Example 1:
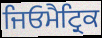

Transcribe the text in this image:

ਜਿਓਮੈਟ੍ਰਿਕ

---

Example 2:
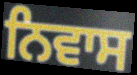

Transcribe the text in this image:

ਨਿਵਾਸ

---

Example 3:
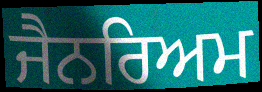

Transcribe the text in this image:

ਜੈਨਰਿਅਮ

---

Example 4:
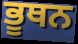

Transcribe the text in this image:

ਭੂਥਨ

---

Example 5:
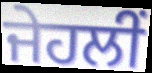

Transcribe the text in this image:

ਜੇਹਲੀਂ